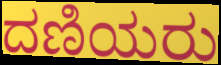
ದಣಿಯರು